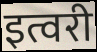
इत्वरी